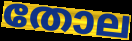
തോല